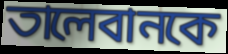
তালেবানকে